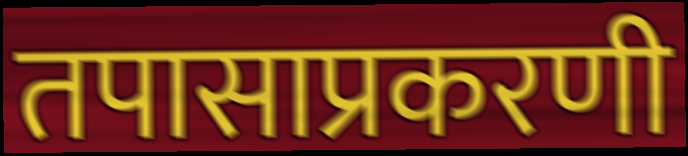
तपासाप्रकरणी